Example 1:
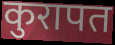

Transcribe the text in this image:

कुरापत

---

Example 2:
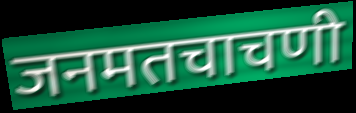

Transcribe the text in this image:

जनमतचाचणी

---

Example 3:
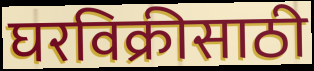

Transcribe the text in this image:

घरविक्रीसाठी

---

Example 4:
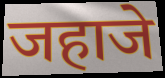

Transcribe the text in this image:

जहाजे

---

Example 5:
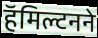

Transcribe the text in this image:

हॅमिल्टनने